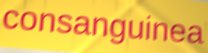
consanguinea